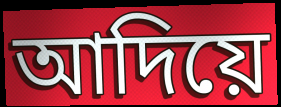
আদিয়ে